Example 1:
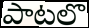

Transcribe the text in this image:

పాటలొ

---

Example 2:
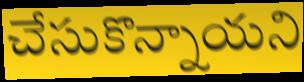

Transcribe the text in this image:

చేసుకొన్నాయని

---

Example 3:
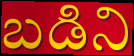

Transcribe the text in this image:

బడిని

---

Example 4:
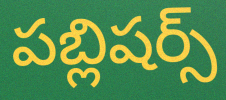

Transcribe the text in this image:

పబ్లిషర్స్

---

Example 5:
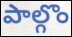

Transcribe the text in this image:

పాల్గొం